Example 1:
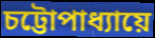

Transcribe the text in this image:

চট্টোপাধ্যায়ে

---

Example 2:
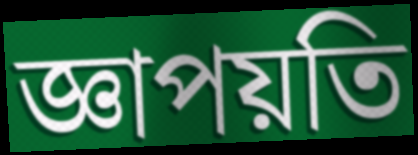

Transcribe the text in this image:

জ্ঞাপয়তি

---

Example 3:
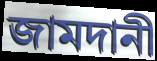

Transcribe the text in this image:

জামদানী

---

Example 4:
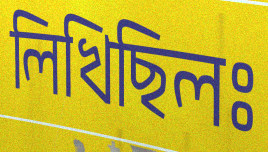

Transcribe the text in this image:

লিখিছিলঃ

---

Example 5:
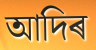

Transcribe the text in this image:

আদিৰ